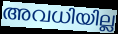
അവധിയില്ല